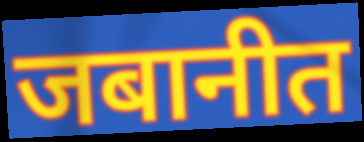
जबानीत